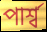
পার্শ্ব